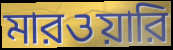
মারওয়ারি